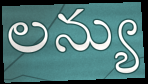
లన్యు